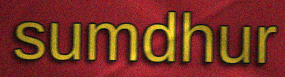
sumdhur